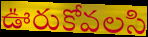
ఊరుకోవలసి